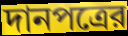
দানপত্রের